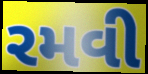
રમવી